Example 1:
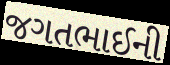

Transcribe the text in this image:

જગતભાઈની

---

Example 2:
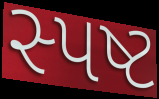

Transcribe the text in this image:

સ્પષ્ટ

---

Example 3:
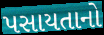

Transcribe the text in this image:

પસાયતાનો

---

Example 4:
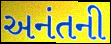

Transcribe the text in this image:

અનંતની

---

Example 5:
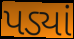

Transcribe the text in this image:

પડ્યાં